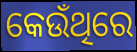
କେଉଁଥିରେ